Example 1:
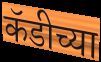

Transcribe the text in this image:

कॅडीच्या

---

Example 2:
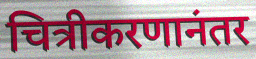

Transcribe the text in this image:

चित्रीकरणानंतर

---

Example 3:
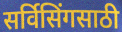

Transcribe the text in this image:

सर्विसिंगसाठी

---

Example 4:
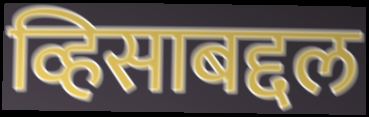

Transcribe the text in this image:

व्हिसाबद्दल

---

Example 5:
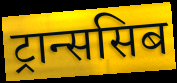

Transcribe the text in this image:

ट्रान्ससिब